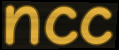
ncc